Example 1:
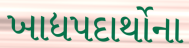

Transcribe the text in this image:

ખાદ્યપદાર્થોના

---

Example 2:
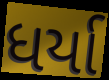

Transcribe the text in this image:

ધર્યા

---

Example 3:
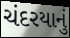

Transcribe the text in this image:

ચંદરયાનું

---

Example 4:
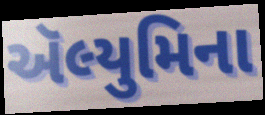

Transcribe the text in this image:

ઍલ્યુમિના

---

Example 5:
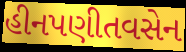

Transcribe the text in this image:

હીનપણીતવસેન